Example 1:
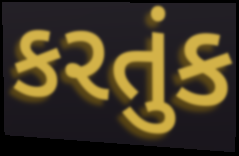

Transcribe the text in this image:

કરતુંક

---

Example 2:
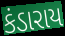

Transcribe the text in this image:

કંડારાય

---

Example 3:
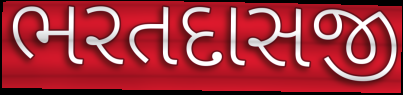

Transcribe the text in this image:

ભરતદાસજી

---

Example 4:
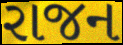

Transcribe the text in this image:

રાજન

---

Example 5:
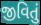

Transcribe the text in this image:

જીવિતું